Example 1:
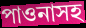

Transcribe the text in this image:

পাওনাসহ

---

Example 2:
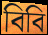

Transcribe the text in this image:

বিবি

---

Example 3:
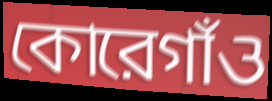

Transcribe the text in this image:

কোরেগাঁও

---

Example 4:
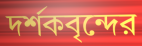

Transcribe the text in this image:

দর্শকবৃন্দের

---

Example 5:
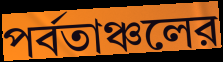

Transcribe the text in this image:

পর্বতাঞ্চলের